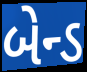
બેન્ડ